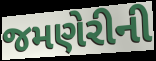
જમણેરીની